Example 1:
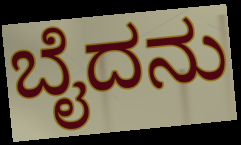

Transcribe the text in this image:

ಬೈದನು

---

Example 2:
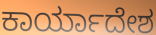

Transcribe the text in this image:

ಕಾರ್ಯಾದೇಶ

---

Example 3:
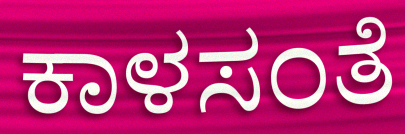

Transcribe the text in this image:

ಕಾಳಸಂತೆ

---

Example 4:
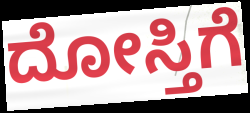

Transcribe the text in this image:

ದೋಸ್ತಿಗೆ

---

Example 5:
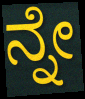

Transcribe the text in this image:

ನ್ನೇ